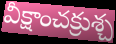
వీక్షాంచక్రుశ్చ